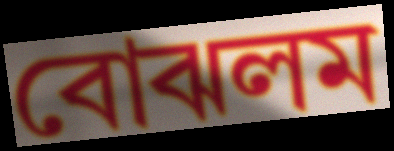
বোঝলম